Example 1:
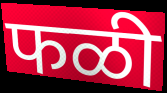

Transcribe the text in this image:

फळी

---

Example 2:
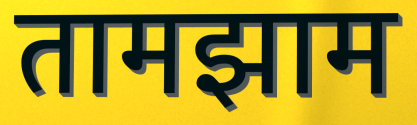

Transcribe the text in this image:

तामझाम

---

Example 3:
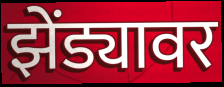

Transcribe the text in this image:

झेंड्यावर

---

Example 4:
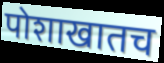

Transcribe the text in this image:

पोशाखातच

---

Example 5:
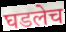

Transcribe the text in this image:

घडलेच